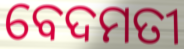
ବେଦମତୀ